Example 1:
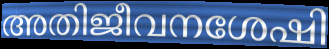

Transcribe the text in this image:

അതിജീവനശേഷി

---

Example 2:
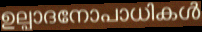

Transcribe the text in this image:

ഉല്പാദനോപാധികൾ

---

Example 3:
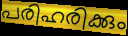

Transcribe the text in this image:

പരിഹരിക്കും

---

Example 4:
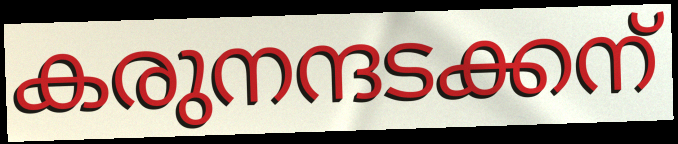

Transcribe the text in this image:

കരുനന്ദടക്കന്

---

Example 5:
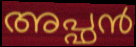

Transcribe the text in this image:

അപ്ഫൻ